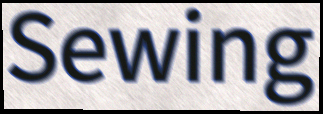
Sewing